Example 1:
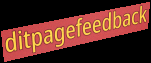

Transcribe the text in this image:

ditpagefeedback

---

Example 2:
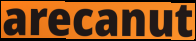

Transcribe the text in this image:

arecanut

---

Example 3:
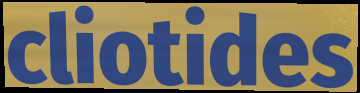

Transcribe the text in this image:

cliotides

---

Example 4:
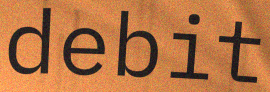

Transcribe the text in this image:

debit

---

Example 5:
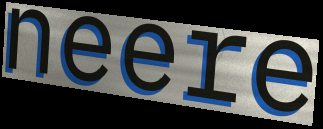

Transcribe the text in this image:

neere